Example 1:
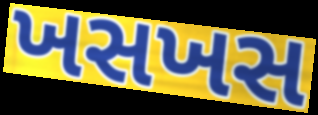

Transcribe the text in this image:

ખસખસ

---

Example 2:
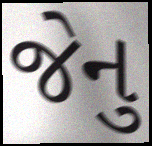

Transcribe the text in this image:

જેનુ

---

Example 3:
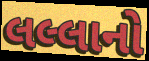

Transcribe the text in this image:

લલ્લાનો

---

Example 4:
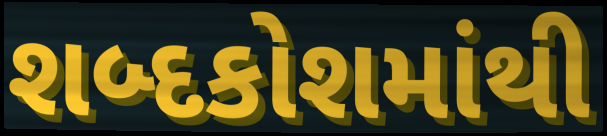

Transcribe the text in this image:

શબ્દકોશમાંથી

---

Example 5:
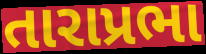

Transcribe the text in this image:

તારાપ્રભા